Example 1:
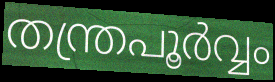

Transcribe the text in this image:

തന്ത്രപൂർവ്വം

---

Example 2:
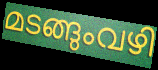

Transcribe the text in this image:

മടങ്ങുംവഴി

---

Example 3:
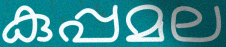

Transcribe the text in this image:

കുപ്പമല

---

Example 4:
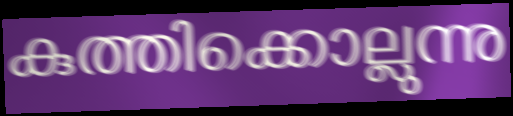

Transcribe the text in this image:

കുത്തിക്കൊല്ലുന്നു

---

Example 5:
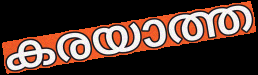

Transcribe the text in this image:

കരയാത്ത